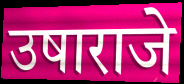
उषाराजे